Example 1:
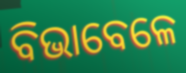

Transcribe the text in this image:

ବିଭାବେଳେ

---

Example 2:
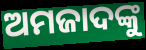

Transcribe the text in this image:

ଅମଜାଦଙ୍କୁ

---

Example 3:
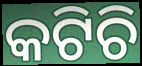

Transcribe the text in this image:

କଟିଚି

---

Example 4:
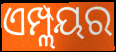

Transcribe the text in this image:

ଏମ୍ପ୍ଲୟର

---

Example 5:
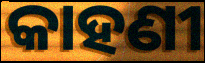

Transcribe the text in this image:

କାହଣୀ